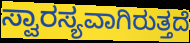
ಸ್ವಾರಸ್ಯವಾಗಿರುತ್ತದೆ